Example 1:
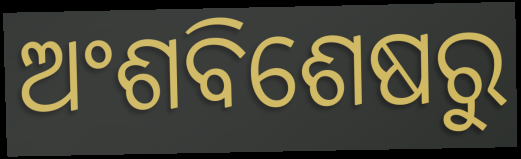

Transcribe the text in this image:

ଅଂଶବିଶେଷରୁ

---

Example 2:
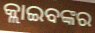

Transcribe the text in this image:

କ୍ଲାଇବଙ୍କର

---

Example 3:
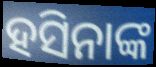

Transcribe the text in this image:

ହସିନାଙ୍କ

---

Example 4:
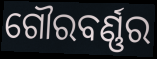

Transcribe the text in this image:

ଗୌରବର୍ଣ୍ଣର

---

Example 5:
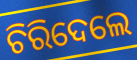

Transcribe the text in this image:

ଚିରିଦେଲେ